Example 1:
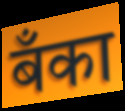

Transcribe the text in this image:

बँका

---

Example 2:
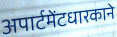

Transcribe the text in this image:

अपार्टमेंटधारकाने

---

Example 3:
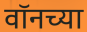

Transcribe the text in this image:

वॉनच्या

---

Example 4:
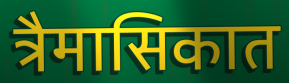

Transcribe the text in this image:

त्रैमासिकात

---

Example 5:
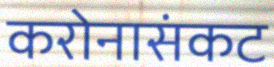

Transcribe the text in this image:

करोनासंकट